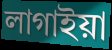
লাগাইয়া